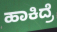
ಹಾಕಿದ್ರೆ